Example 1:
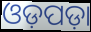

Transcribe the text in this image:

ଓଡ଼ପଡ଼ା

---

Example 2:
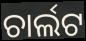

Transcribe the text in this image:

ଚାର୍ଲଟ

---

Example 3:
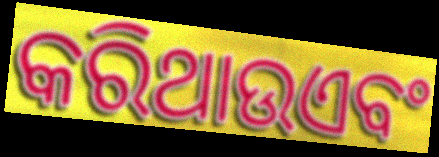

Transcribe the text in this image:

କରିଥାଉଏବଂ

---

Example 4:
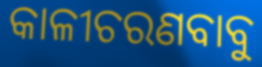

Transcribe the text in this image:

କାଳୀଚରଣବାବୁ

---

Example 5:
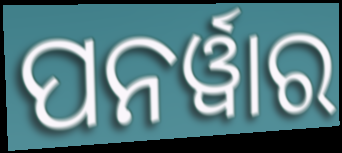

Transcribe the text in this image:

ପନର୍ୱାର